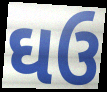
ઘઉ